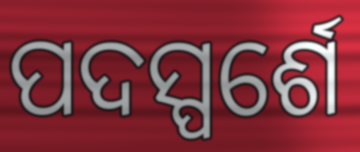
ପଦସ୍ପର୍ଶେ